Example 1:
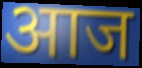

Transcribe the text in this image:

आज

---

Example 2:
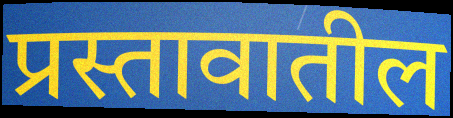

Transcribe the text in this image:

प्रस्तावातील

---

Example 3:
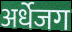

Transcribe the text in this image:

अर्धेजग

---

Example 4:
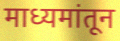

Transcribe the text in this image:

माध्यमांतून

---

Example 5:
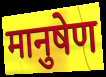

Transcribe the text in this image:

मानुषेण